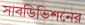
সাবডিভিশনের